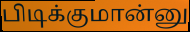
பிடிக்குமான்னு